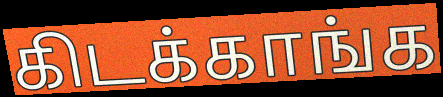
கிடக்காங்க